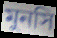
মুনসি